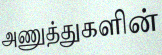
அணுத்துகளின்